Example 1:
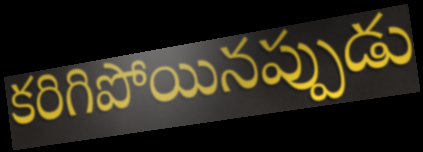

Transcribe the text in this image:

కరిగిపోయినప్పుడు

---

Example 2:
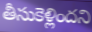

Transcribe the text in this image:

తీసుకెళ్లిందని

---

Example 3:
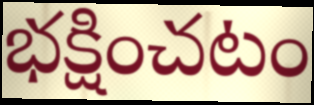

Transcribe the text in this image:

భక్షించటం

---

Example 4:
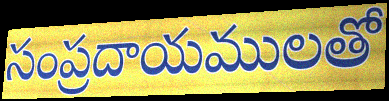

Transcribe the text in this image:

సంప్రదాయములతో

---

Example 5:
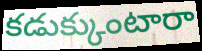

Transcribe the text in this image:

కడుక్కుంటారా